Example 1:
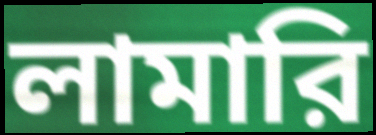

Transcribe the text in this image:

লামারি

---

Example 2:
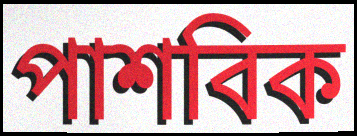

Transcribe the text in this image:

পাশবিক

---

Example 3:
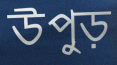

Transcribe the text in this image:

উপুড়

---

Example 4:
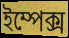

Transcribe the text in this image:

ইম্পেক্স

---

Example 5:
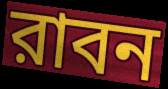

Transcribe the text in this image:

রাবন